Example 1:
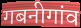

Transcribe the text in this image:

गबनीगांव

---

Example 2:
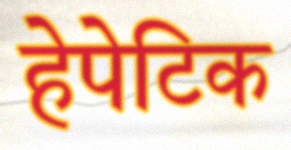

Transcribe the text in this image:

हेपेटिक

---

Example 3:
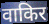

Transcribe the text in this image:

वाकिर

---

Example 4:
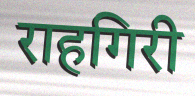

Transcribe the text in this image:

राहगिरी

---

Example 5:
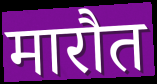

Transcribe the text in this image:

मारौत